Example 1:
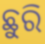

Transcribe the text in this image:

ଛୁରି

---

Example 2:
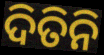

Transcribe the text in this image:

ଦିତିନି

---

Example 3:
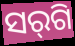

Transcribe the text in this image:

ସର୍‌ଗି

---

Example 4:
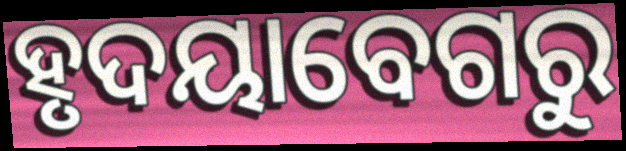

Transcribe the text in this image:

ହୃଦୟାବେଗରୁ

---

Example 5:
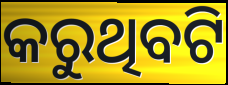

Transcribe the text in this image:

କରୁଥିବଟି